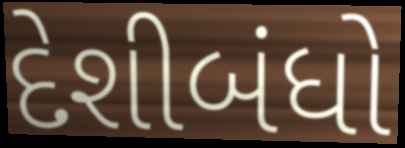
દેશીબંધો